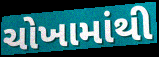
ચોખામાંથી